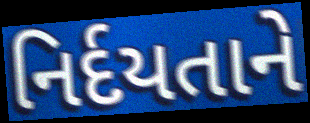
નિર્દયતાને